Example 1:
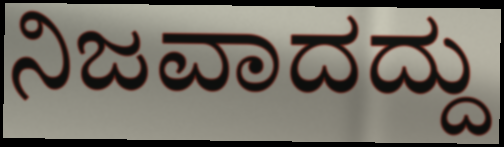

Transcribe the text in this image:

ನಿಜವಾದದ್ದು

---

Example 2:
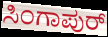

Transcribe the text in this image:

ಸಿಂಗಾಪುರ್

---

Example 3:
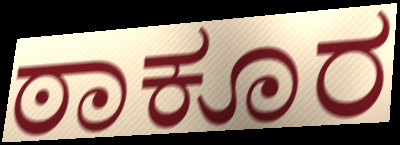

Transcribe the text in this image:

ಠಾಕೂರ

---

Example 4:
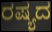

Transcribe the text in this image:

ರಷ್ಯದ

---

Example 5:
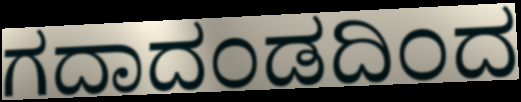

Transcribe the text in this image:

ಗದಾದಂಡದಿಂದ